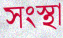
সংস্থা